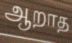
ஆறாத